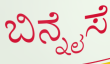
ಬಿನ್ನೈಸೆ